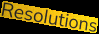
Resolutions